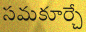
సమకూర్చే